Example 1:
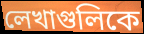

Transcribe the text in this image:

লেখাগুলিকে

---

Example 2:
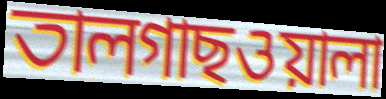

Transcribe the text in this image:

তালগাছওয়ালা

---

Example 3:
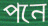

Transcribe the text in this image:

পনে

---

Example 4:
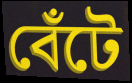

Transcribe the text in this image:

বেঁটে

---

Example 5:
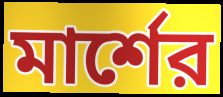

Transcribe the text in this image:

মার্শের